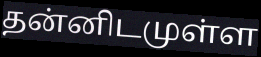
தன்னிடமுள்ள